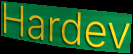
Hardev